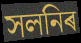
সলনিৰ